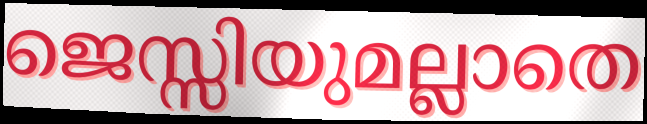
ജെസ്സിയുമല്ലാതെ